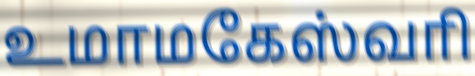
உமாமகேஸ்வரி